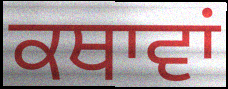
ਕਥਾਵਾਂ